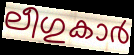
ലീഗുകാർ